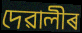
দেৱালীৰ